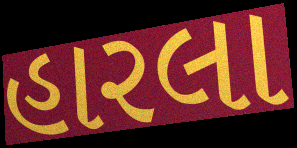
હારલા